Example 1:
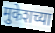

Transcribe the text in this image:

मुकेशच्या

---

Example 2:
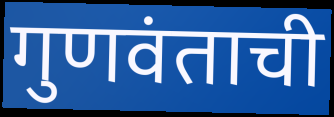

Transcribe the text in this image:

गुणवंताची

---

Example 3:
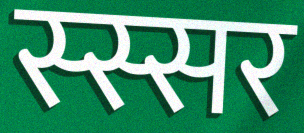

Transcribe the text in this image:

स्स्सर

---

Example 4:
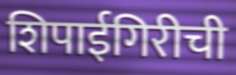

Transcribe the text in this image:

शिपाईगिरीची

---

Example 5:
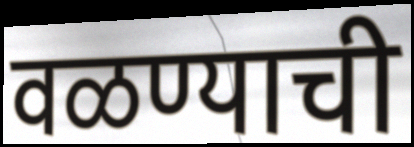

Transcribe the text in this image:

वळण्याची